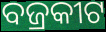
ବଜ୍ରକୀଟ